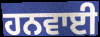
ਹਨਵਾਈ